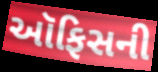
ઑફિસની